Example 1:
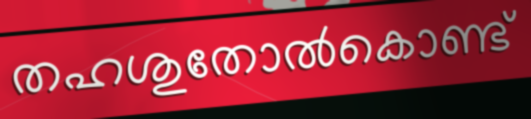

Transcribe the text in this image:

തഹശുതോൽകൊണ്ട്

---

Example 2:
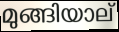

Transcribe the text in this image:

മുങ്ങിയാല്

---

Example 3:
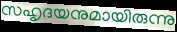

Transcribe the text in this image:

സഹൃദയനുമായിരുന്നു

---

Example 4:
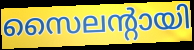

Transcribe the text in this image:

സൈലന്റായി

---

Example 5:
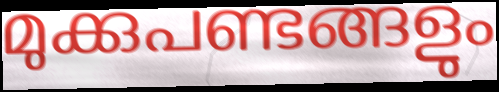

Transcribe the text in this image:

മുക്കുപണ്ടങ്ങളും